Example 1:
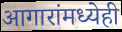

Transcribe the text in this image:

आगारांमध्येही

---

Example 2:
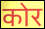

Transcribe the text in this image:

कोर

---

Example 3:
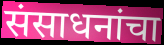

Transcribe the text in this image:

संसाधनांचा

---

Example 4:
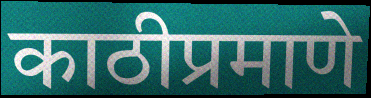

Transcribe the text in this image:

काठीप्रमाणे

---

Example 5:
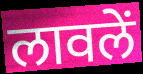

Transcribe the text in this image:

लावलें